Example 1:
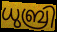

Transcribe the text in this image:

ധുബ്രി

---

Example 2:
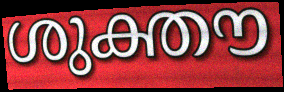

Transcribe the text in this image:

ശുക്തൗ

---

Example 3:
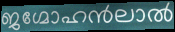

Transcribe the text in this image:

ജഗ്മോഹൻലാൽ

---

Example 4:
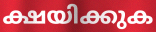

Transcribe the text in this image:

ക്ഷയിക്കുക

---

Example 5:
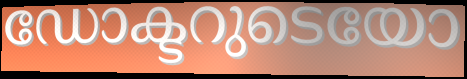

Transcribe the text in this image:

ഡോക്ടറുടെയോ